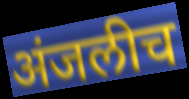
अंजलीच